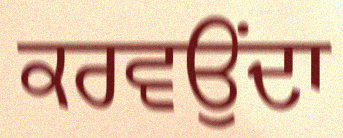
ਕਰਵਉਂਦਾ